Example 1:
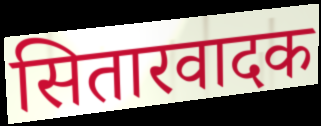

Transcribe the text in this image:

सितारवादक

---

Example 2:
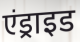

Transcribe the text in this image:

एंड्राइड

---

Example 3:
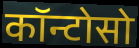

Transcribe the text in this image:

कॉन्टोसो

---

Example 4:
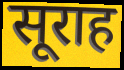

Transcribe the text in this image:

सूराह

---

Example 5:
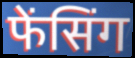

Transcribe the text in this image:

फेंसिंग